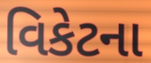
વિકેટના